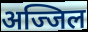
अज्जिल